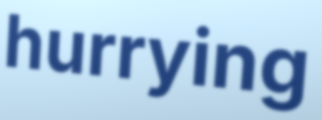
hurrying